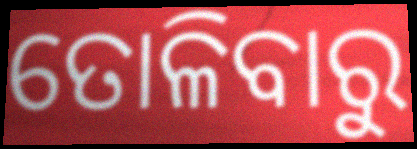
ତୋଳିବାରୁ